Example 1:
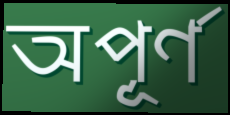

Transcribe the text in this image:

অপূর্ণ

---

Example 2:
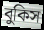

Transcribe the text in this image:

বুকিস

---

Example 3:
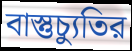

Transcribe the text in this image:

বাস্তুচ্যুতির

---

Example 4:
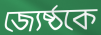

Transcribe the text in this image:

জ্যেষ্ঠকে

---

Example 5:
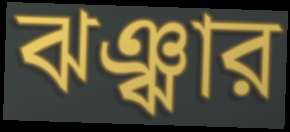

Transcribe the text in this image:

ঝঞ্ঝার